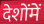
देशोंमें